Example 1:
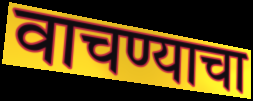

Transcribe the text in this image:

वाचण्याचा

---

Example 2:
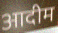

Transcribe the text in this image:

आदीम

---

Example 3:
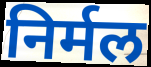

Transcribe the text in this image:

निर्मल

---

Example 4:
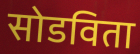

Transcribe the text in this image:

सोडविता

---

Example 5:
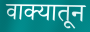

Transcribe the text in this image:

वाक्यातून